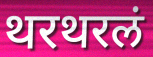
थरथरलं